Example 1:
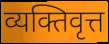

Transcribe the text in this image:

व्यक्तिवृत्त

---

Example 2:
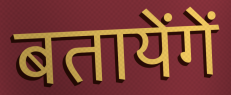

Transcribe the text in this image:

बतायेंगें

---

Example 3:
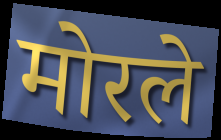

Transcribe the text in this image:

मोरले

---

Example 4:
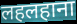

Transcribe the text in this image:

लहलहाना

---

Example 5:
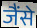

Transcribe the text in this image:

जैंसे